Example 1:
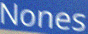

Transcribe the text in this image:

Nones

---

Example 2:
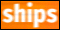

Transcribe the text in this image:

ships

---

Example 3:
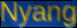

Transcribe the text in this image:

Nyang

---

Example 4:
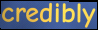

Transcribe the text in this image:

credibly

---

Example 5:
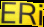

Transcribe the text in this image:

ERi